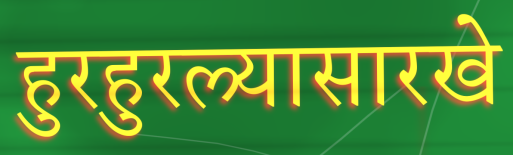
हुरहुरल्यासारखे